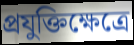
প্রযুক্তিক্ষেত্রে